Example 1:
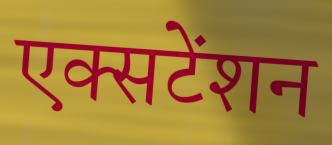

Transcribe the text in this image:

एक्सटेंशन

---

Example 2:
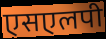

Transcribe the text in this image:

एसएलपी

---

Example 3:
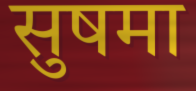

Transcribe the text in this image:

सुषमा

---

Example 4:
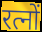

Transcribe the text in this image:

रत्नों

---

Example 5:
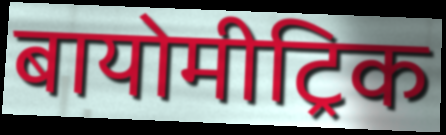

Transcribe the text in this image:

बायोमीट्रिक